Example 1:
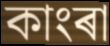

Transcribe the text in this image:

কাংৰা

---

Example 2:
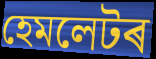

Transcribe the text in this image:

হেমলেটৰ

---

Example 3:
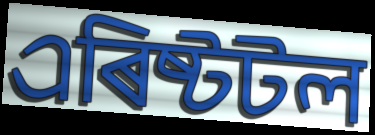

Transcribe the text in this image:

এৰিষ্টটল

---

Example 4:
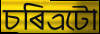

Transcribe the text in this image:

চৰিত্ৰটো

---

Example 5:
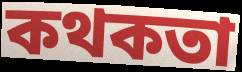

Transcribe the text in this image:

কথকতা